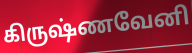
கிருஷ்ணவேனி